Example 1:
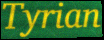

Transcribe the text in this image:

Tyrian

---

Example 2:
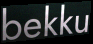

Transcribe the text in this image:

bekku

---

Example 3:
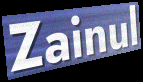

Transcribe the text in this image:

Zainul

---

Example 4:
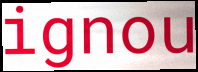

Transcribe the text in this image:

ignou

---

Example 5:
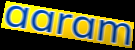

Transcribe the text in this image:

aaram